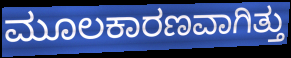
ಮೂಲಕಾರಣವಾಗಿತ್ತು